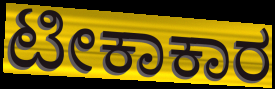
ಟೀಕಾಕಾರ